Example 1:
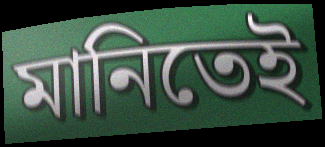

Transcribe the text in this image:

মানিতেই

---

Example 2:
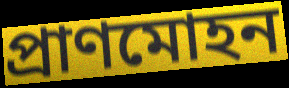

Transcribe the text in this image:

প্রাণমোহন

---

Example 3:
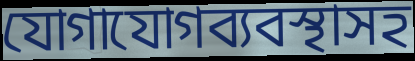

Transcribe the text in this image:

যোগাযোগব্যবস্থাসহ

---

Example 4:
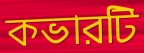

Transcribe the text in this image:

কভারটি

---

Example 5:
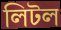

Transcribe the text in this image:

লিটল